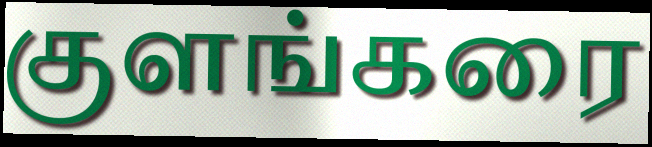
குளங்கரை